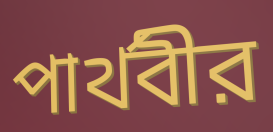
পার্থবীর